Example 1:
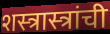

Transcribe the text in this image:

शस्त्रास्त्रांची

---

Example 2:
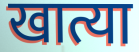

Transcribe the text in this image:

खात्या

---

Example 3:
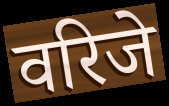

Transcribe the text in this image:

वरिजे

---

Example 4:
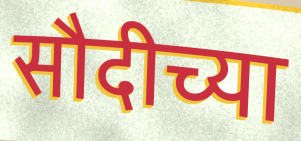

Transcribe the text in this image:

सौदीच्या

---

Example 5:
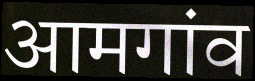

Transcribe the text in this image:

आमगांव